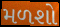
મળશો